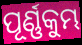
ପୂର୍ଣ୍ଣକୁମ୍ଭ